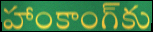
హాంకాంగ్‌కు